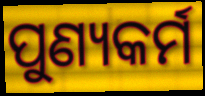
ପୁଣ୍ୟକର୍ମ